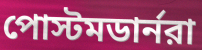
পোস্টমডার্নরা